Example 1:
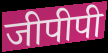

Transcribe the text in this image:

जीपीपी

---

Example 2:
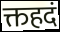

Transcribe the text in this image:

क्तहदं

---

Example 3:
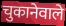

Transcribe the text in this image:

चुकानेवाले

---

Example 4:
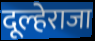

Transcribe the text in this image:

दूल्हेराजा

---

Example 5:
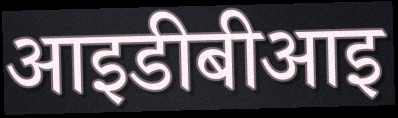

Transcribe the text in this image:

आइडीबीआइ